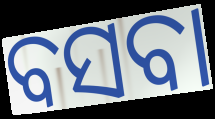
ବସବା